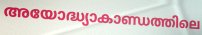
അയോദ്ധ്യാകാണ്ഡത്തിലെ